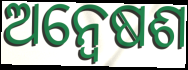
ଅନ୍ୱେଷଶ